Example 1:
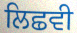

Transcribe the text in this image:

ਲਿਛਵੀ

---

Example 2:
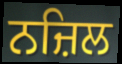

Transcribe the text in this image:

ਨਜ਼ਿਲ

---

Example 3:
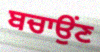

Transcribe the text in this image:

ਬਚਾਉਂਣ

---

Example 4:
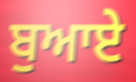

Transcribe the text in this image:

ਬੁਆਏ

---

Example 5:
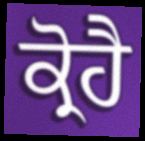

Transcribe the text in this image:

ਕ੍ਰੋਹੈ